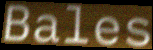
Bales